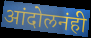
आंदोलनंही